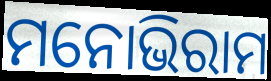
ମନୋଭିରାମ